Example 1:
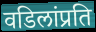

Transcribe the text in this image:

वडिलांप्रति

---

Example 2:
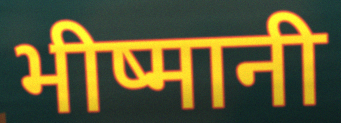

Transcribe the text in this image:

भीष्मानी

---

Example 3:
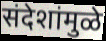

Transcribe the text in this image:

संदेशांमुळे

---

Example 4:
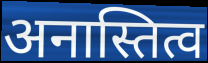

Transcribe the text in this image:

अनास्तित्व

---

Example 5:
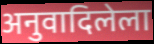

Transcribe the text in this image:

अनुवादिलेला